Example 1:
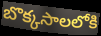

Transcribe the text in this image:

బొక్కసాలలోకి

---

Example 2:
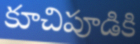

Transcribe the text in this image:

కూచిపూడికి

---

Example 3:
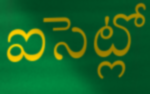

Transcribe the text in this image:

ఐసెట్లో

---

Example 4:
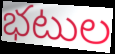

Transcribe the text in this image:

భటుల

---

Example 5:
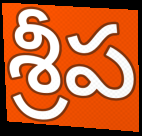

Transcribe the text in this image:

శ్రీప